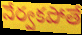
నేర్వకపోతే